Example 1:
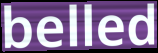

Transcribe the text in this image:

belled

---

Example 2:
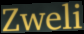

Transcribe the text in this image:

Zweli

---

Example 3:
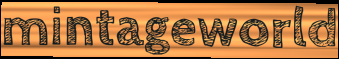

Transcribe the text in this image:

mintageworld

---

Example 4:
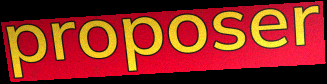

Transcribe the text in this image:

proposer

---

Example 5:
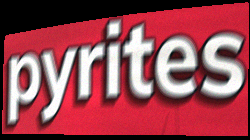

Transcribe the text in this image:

pyrites